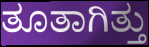
ತೂತಾಗಿತ್ತು